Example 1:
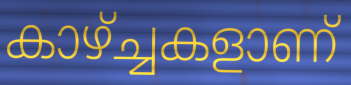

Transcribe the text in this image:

കാഴ്ച്ചകളാണ്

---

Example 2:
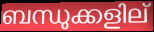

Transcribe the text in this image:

ബന്ധുക്കളില്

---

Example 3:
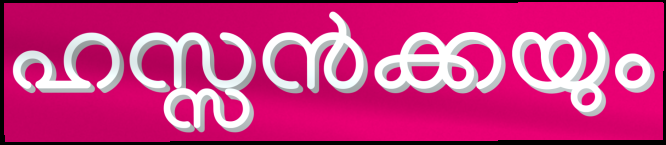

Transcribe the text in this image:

ഹസ്സൻക്കയും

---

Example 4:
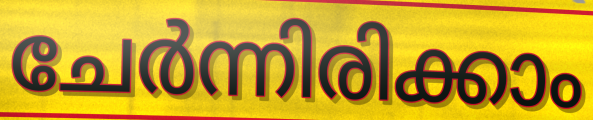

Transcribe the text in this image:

ചേർന്നിരിക്കാം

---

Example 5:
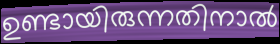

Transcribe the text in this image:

ഉണ്ടായിരുന്നതിനാൽ